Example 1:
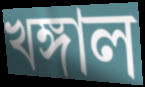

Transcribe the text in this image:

খঙ্গাল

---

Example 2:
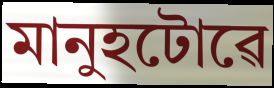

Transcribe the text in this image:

মানুহটোৱে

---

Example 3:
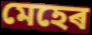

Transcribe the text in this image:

মেহেৰ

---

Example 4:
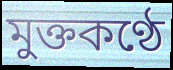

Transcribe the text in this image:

মুক্তকণ্ঠে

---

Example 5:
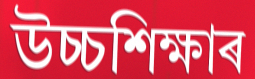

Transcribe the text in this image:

উচ্চশিক্ষাৰ